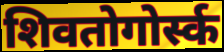
शिवतोगोर्स्क